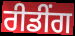
ਰੀਡੀਂਗ